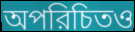
অপরিচিতও